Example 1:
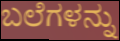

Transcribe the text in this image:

ಬಲೆಗಳನ್ನು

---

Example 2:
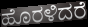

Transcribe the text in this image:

ಹೊರಳಿದರೆ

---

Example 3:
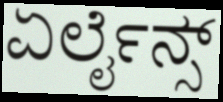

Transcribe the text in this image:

ಏರ್ಲೈನ್ಸ್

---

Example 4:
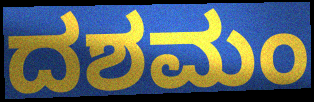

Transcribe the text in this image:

ದಶಮಂ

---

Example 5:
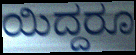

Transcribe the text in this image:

ಯಿದ್ದರೂ